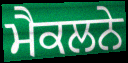
ਮੈਕਲਨੇ